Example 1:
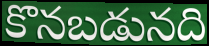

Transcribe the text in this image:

కొనబడునది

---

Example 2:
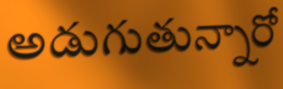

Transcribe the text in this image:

అడుగుతున్నారో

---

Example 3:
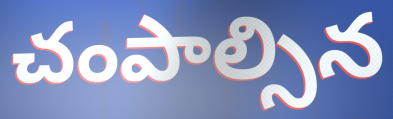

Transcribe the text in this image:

చంపాల్సిన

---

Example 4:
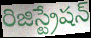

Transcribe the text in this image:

రిజిస్ట్రేషన్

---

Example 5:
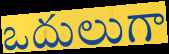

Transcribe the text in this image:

ఒదులుగా